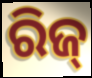
ରିଜ୍